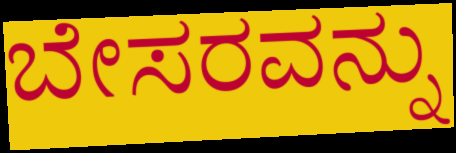
ಬೇಸರವನ್ನು